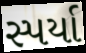
સ્પર્યા